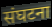
संघटना